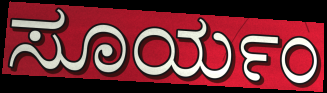
ಸೂರ್ಯಂ